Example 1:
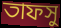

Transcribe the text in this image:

তাফসু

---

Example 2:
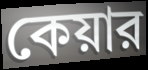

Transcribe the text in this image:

কেয়ার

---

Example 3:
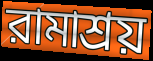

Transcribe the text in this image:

রামাশ্রয়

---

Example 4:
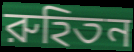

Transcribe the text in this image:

রুহিতন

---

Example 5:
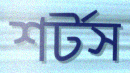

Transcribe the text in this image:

শর্টস